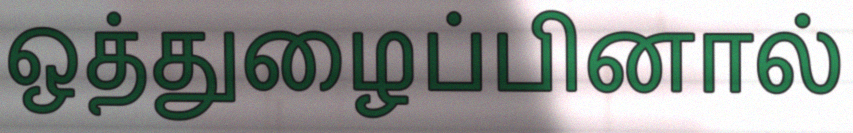
ஒத்துழைப்பினால்